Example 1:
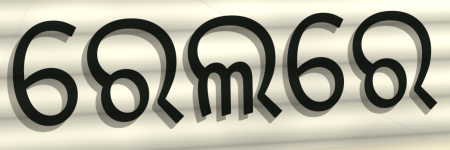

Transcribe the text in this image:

ରେଲରେ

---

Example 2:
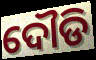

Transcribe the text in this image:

ଦୌଡି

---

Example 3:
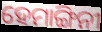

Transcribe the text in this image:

ହେମାଙ୍ଗିନୀ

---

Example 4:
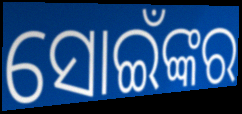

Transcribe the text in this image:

ସୋଇଁଙ୍କର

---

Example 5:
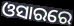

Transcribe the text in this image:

ଓସାରରେ